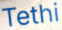
Tethi